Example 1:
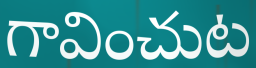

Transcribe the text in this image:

గావించుట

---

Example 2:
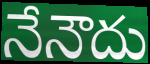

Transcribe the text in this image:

నేనౌదు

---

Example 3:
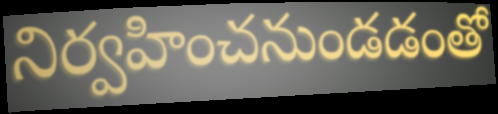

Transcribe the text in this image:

నిర్వహించనుండడంతో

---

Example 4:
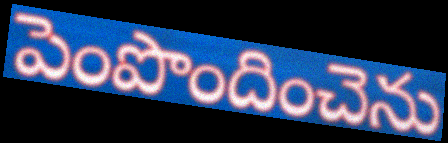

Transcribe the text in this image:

పెంపొందించెను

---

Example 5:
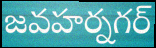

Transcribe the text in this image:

జవహర్నగర్